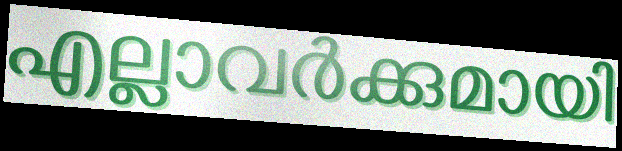
എല്ലാവർക്കുമായി